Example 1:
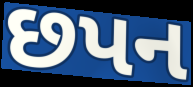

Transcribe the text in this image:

છપન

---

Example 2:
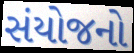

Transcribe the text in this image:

સંયોજનો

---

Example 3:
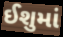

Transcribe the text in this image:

ઈશુમાં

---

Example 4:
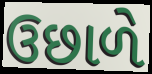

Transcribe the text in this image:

ઉછાળે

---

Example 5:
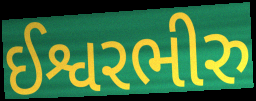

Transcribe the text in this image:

ઈશ્વરભીરુ